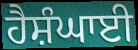
ਹੈਸ਼ੰਘਾਈ